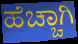
ಹೆಚ್ಚಾಗಿ